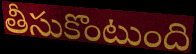
తీసుకొంటుంది